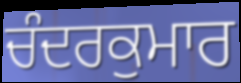
ਚੰਦਰਕੁਮਾਰ